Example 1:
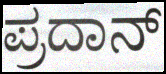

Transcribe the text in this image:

ಪ್ರದಾನ್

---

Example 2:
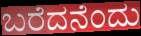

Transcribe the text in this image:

ಬರೆದನೆಂದು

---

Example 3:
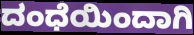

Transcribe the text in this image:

ದಂಧೆಯಿಂದಾಗಿ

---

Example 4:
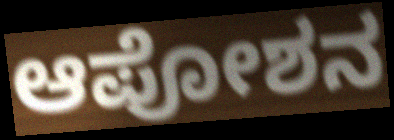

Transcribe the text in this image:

ಆಪೋಶನ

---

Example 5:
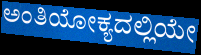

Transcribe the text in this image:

ಅಂತಿಯೋಕ್ಯದಲ್ಲಿಯೇ